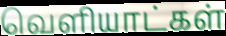
வெளியாட்கள்